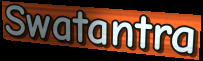
Swatantra